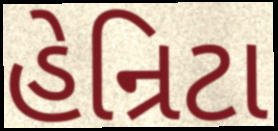
હેન્રિટા